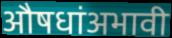
औषधांअभावी